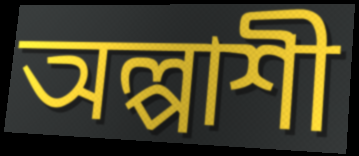
অল্পাশী